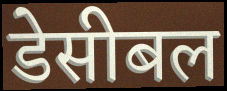
डेसीबल